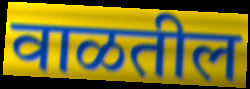
वाळतील